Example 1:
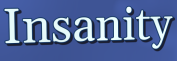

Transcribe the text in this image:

Insanity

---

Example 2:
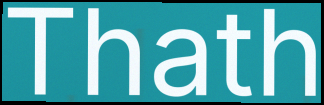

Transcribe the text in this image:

Thath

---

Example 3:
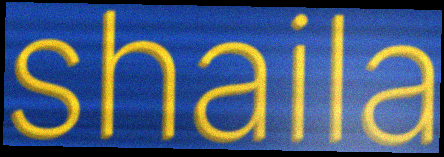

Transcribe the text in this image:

shaila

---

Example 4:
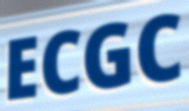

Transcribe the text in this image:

ECGC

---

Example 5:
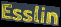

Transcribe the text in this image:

Esslin